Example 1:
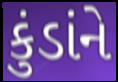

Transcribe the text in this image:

કુંડાંને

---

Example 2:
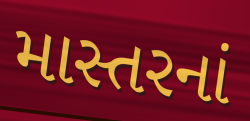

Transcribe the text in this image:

માસ્તરનાં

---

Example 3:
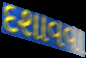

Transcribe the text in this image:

દશાવવા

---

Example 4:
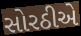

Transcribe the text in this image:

સોરઠીએ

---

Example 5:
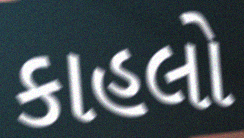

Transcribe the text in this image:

કાહલો